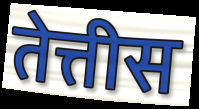
तेत्तीस